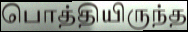
பொத்தியிருந்த